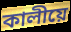
কালীয়ে